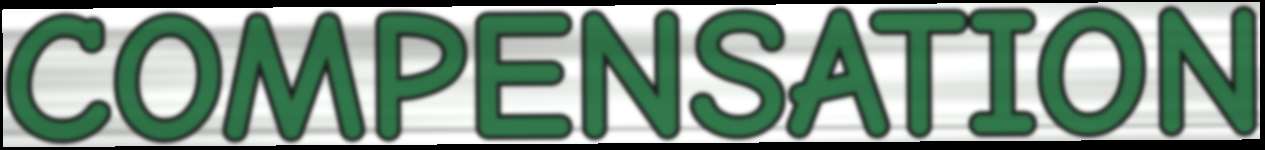
COMPENSATION